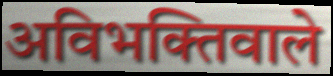
अविभक्तिवाले